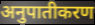
अनुपातीकरण